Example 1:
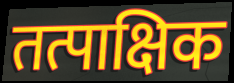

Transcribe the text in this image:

तत्पाक्षिक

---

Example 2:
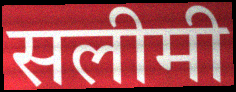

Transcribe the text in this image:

सलीमी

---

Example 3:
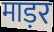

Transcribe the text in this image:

माड़र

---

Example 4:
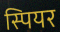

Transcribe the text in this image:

स्पियर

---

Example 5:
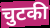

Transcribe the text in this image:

चुटकी